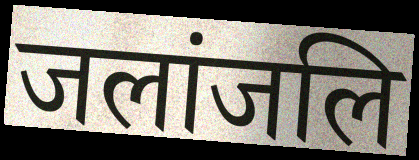
जलांजलि